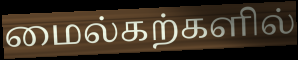
மைல்கற்களில்